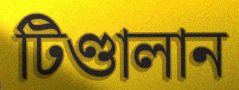
টিণ্ডালান